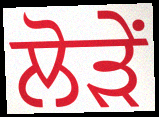
ਲੋੜੇਂ